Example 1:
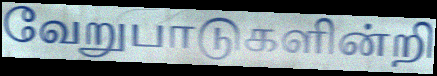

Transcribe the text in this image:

வேறுபாடுகளின்றி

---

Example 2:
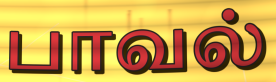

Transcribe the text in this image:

பாவல்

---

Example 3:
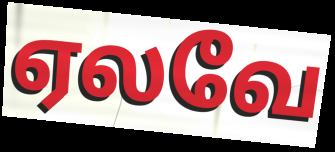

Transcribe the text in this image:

ஏலவே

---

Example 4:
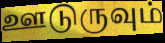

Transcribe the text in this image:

ஊடுருவும்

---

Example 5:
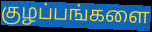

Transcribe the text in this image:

குழப்பங்களை